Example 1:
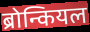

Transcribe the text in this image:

ब्रोन्कियल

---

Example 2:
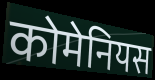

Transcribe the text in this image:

कोमेनियस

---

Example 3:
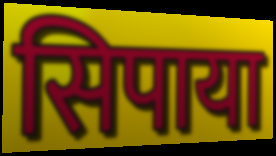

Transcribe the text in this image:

सिपाया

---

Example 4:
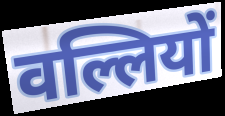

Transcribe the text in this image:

वल्लियों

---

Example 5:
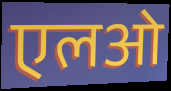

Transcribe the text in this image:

एलओ